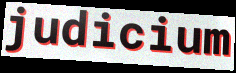
judicium